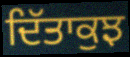
ਦਿੱਤਾਕੁਝ